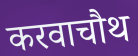
करवाचौथ